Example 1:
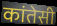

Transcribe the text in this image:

कांतेसी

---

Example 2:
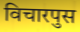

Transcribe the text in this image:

विचारपुस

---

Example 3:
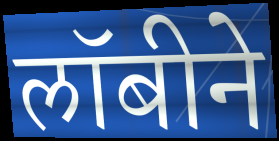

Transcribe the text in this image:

लॉबीने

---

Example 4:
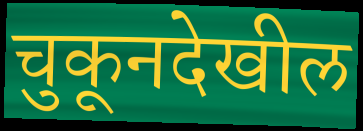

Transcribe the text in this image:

चुकूनदेखील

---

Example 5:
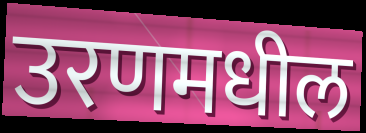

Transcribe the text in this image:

उरणमधील